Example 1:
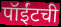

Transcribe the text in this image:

पॉईंटची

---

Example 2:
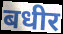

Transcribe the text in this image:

बधीर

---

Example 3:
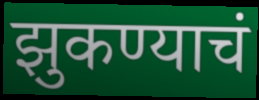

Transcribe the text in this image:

झुकण्याचं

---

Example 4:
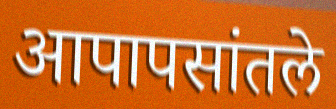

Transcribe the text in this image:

आपापसांतले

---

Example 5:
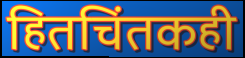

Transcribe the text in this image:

हितचिंतकही